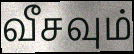
வீசவும்